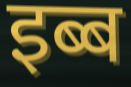
इब्ब